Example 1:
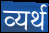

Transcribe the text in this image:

व्‍यर्थ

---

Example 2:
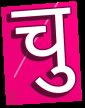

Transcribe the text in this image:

चु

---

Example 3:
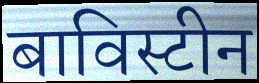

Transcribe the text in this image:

बाविस्टीन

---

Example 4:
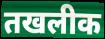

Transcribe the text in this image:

तखलीक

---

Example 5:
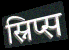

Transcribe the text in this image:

स्निप्स